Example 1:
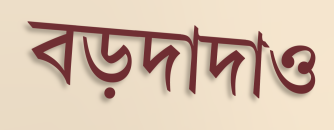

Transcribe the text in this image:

বড়দাদাও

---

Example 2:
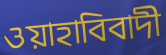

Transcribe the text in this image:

ওয়াহাবিবাদী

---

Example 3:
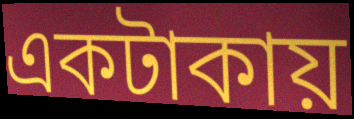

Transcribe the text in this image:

একটাকায়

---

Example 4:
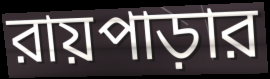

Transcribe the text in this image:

রায়পাড়ার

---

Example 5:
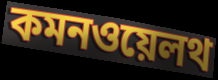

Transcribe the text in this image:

কমনওয়েলথ